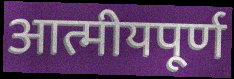
आत्मीयपूर्ण